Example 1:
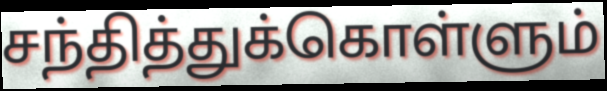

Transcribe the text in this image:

சந்தித்துக்கொள்ளும்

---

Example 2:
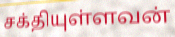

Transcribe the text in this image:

சக்தியுள்ளவன்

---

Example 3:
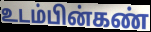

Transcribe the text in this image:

உடம்பின்கண்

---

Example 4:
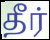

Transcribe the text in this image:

தீர்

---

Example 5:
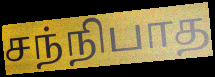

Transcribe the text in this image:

சந்நிபாத